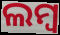
ଲମ୍ୱ